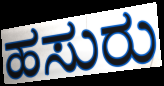
ಹಸುರು